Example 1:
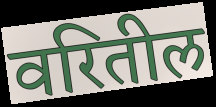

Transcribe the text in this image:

वरितील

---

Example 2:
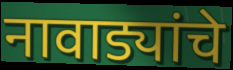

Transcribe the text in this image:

नावाड्यांचे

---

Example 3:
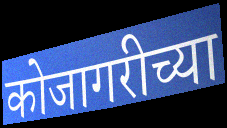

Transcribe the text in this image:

कोजागरीच्या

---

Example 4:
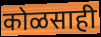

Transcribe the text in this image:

कोळसाही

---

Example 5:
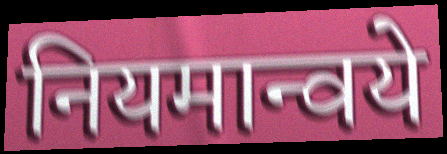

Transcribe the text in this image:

नियमान्वये